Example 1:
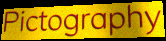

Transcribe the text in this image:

Pictography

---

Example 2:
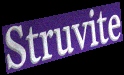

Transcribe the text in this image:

Struvite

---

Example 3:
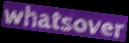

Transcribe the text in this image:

whatsover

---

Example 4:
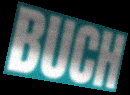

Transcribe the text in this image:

BUCH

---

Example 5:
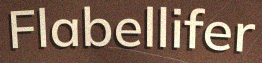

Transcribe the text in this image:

Flabellifer